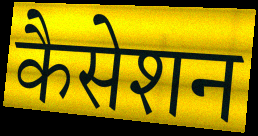
कैसेशन